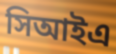
সিআইএ